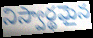
నిస్వార్థమైన